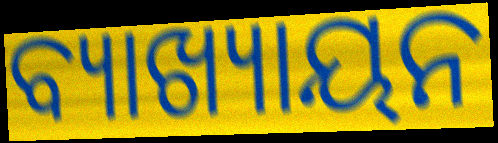
ବ୍ୟାଖ୍ୟାୟନ